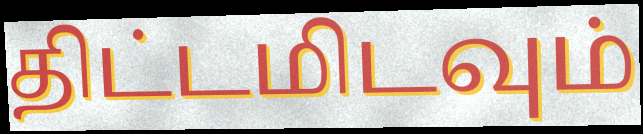
திட்டமிடவும்